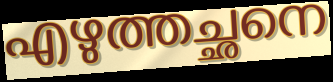
എഴുത്തച്ഛനെ